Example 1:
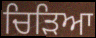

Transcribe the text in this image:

ਚਿੜਿਆ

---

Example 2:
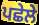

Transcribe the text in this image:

ਪਛੇਲੇ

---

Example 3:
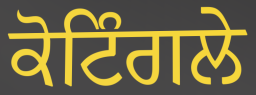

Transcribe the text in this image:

ਕੋਟਿੰਗਲੇ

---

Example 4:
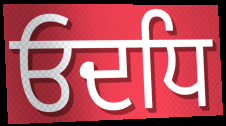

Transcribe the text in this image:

ਓਦਧਿ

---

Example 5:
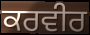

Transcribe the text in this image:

ਕਰਵੀਰ